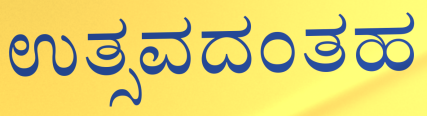
ಉತ್ಸವದಂತಹ